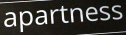
apartness